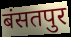
बंसतपुर